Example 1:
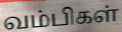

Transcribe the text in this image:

வம்பிகள்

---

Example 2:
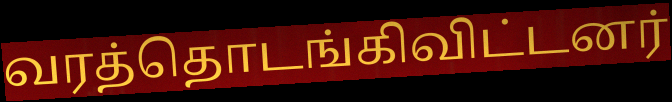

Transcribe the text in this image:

வரத்தொடங்கிவிட்டனர்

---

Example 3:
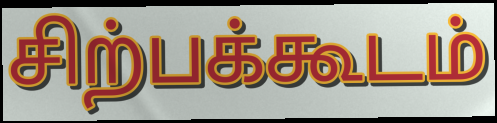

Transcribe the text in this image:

சிற்பக்கூடம்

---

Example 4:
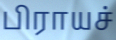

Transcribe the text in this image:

பிராயச்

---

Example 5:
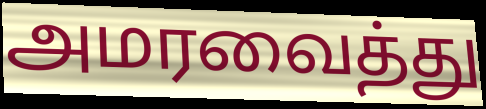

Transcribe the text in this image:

அமரவைத்து